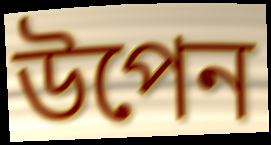
উপেন